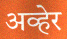
अव्हेर